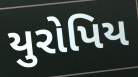
યુરોપિય